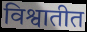
विश्वातीत